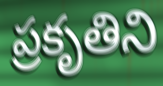
ప్రకృతిని